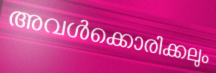
അവൾക്കൊരിക്കലും